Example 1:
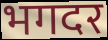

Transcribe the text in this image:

भगदर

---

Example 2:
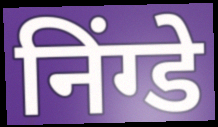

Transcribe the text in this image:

निंग्डे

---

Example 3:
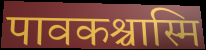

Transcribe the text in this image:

पावकश्चास्मि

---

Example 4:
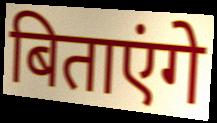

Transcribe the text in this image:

बिताएंगे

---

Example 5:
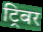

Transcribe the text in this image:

ट्रिबर